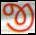
જી